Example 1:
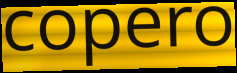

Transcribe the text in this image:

copero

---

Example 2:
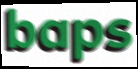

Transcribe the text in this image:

baps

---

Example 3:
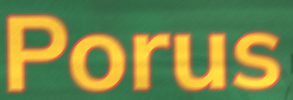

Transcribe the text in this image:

Porus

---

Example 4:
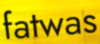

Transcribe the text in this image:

fatwas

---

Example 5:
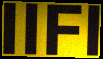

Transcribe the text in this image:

IIFI